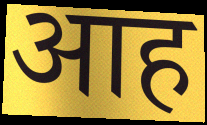
आह